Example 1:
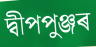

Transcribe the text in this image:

দ্বীপপুঞ্জৰ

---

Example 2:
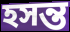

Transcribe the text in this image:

হসন্ত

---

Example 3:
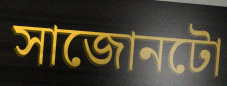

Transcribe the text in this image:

সাজোনটো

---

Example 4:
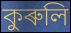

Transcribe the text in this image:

কুৰুলি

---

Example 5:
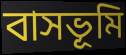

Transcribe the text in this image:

বাসভূমি